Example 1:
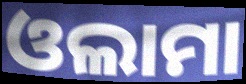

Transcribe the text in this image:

ଓଲାମା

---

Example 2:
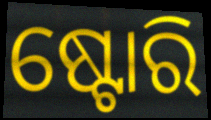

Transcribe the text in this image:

ଷ୍ଟୋରି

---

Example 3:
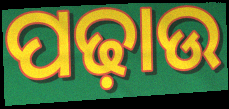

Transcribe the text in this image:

ପଢ଼ାଉ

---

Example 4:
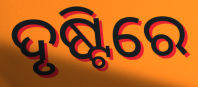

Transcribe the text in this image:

ଦୃଷ୍ଟିରେ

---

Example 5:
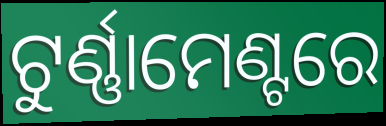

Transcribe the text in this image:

ଟୁର୍ଣ୍ଣାମେଣ୍ଟରେ